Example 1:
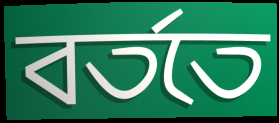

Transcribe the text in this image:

বর্ততে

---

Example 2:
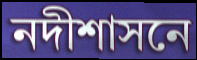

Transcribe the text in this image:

নদীশাসনে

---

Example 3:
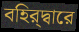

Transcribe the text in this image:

বহির্‌দ্বারে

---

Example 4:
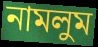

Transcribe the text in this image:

নামলুম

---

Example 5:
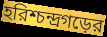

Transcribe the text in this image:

হরিশ্চন্দ্রগড়ের